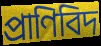
প্রাণিবিদ